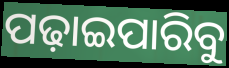
ପଢ଼ାଇପାରିବୁ